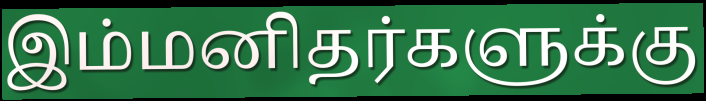
இம்மனிதர்களுக்கு